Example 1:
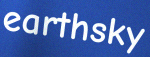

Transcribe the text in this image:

earthsky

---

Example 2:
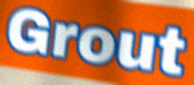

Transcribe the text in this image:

Grout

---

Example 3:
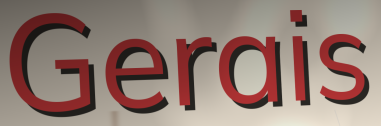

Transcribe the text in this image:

Gerais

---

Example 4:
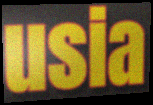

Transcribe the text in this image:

usia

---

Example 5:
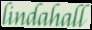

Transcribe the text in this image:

lindahall